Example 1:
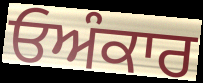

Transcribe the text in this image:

ਓਅੰਕਾਰ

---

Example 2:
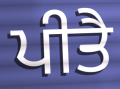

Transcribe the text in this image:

ਪੀਤੈ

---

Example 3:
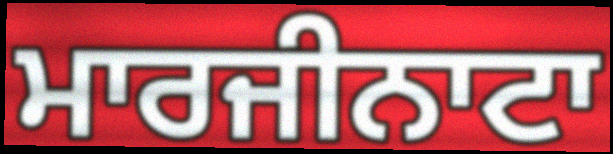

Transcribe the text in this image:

ਮਾਰਜੀਨਾਟਾ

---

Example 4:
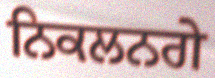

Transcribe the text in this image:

ਨਿਕਲਨਗੇ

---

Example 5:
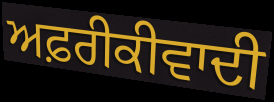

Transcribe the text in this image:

ਅਫ਼ਰੀਕੀਵਾਦੀ